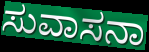
ಸುವಾಸನಾ